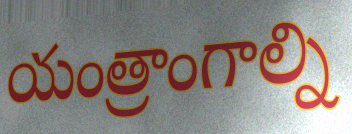
యంత్రాంగాల్ని